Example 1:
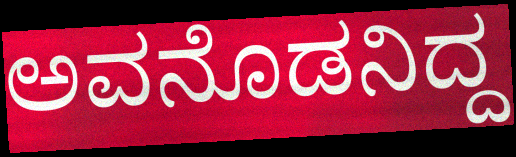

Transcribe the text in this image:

ಅವನೊಡನಿದ್ದ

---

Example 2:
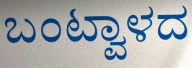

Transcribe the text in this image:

ಬಂಟ್ವಾಳದ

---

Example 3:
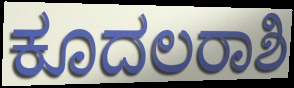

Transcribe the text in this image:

ಕೂದಲರಾಶಿ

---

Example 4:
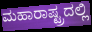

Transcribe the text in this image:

ಮಹಾರಾಷ್ಟ್ರದಲ್ಲಿ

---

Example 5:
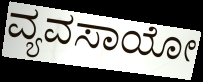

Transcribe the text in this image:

ವ್ಯವಸಾಯೋ